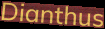
Dianthus